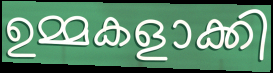
ഉമ്മകളാക്കി